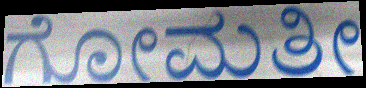
ಗೋಮತೀ